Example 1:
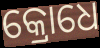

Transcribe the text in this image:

କ୍ରୋଧେ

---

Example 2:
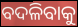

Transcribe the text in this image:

ବଦଳିବାକୁ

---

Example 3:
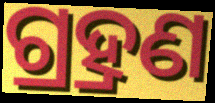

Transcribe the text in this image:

ଗ୍ର୍ରହଣ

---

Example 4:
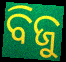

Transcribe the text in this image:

ବିଜୁ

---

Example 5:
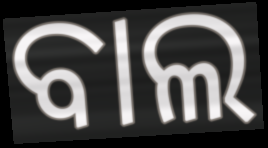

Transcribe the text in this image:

ବାଲ